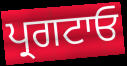
ਪ੍ਰਗਟਾਓ